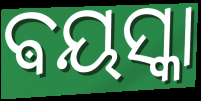
ଵୟସ୍କା